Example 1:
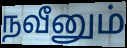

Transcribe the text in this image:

நவீனும்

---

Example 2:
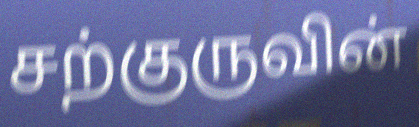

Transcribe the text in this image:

சற்குருவின்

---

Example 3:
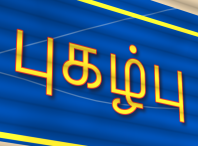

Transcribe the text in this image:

புகழ்பு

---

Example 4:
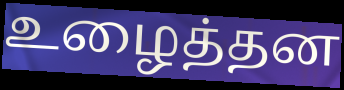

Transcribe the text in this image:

உழைத்தன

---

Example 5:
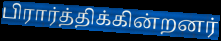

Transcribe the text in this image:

பிரார்த்திக்கின்றனர்